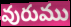
వురుము